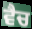
ਵੈਚ